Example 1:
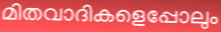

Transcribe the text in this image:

മിതവാദികളെപ്പോലും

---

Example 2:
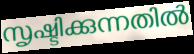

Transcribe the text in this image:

സൃഷ്ടിക്കുന്നതിൽ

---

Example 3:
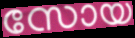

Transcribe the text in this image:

സോയ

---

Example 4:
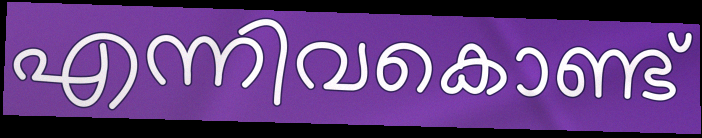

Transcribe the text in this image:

എന്നിവകൊണ്ട്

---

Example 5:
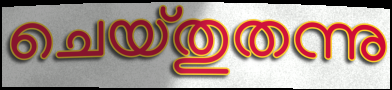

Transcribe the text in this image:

ചെയ്തുതന്നു